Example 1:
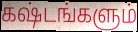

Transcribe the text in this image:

கஷ்டங்களும்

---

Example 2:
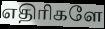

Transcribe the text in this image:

எதிரிகளே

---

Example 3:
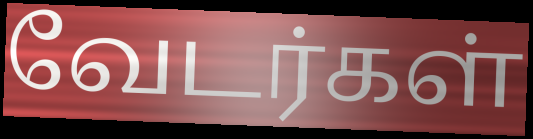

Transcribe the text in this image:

வேடர்கள்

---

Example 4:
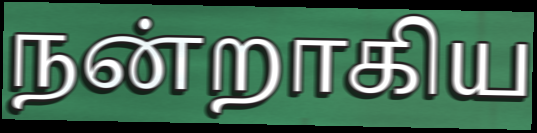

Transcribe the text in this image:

நன்றாகிய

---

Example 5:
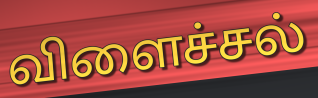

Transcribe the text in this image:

விளைச்சல்